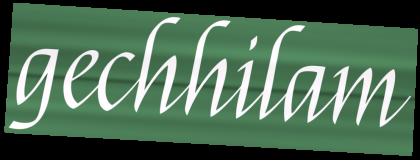
gechhilam